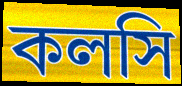
কলসি